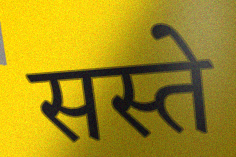
सस्ते